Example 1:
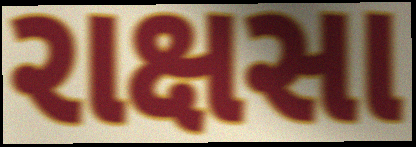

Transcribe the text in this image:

રાક્ષસા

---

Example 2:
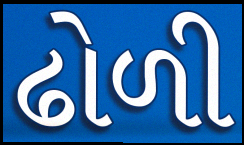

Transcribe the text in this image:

ઢોળી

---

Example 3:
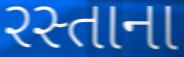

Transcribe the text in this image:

રસ્તાના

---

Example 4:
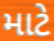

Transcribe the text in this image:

માટે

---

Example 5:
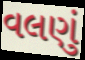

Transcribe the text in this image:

વલણું